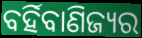
ବର୍ହିବାଣିଜ୍ୟର